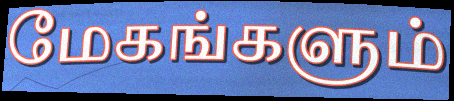
மேகங்களும்